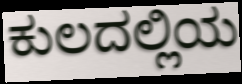
ಕುಲದಲ್ಲಿಯ